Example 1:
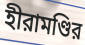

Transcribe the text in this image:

হীরামণ্ডির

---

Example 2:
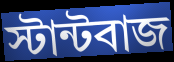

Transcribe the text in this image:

স্টান্টবাজ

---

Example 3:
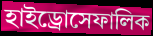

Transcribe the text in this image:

হাইড্রোসেফালিক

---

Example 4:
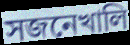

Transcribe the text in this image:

সজনেখালি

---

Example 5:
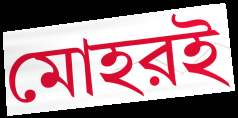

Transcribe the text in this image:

মোহরই